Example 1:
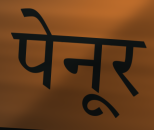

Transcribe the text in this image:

पेनूर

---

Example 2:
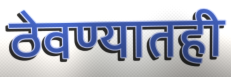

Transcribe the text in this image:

ठेवण्यातही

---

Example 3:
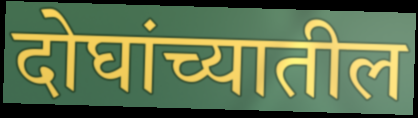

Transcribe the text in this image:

दोघांच्यातील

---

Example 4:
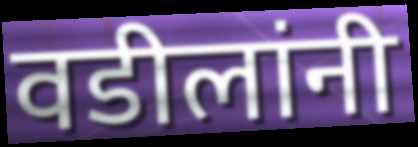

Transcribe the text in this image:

वडीलांनी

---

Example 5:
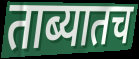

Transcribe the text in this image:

ताब्यातच